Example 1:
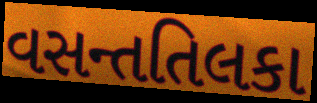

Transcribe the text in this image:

વસન્તતિલકા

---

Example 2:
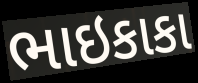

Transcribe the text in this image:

ભાઇકાકા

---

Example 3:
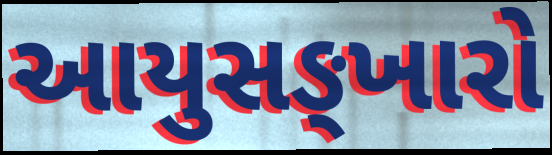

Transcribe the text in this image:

આયુસઙ્ખારો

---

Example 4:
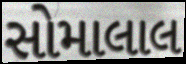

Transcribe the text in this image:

સોમાલાલ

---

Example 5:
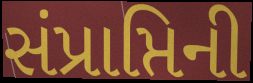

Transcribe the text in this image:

સંપ્રાપ્તિની